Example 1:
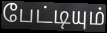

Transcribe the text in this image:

பேட்டியும்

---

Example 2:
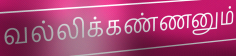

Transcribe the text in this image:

வல்லிக்கண்ணனும்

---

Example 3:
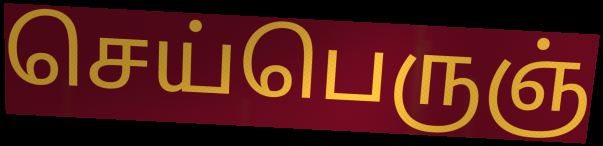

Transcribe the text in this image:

செய்பெருஞ்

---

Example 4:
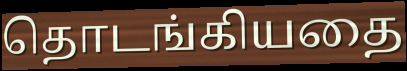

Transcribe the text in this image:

தொடங்கியதை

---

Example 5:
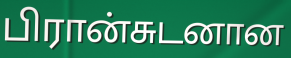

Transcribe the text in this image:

பிரான்சுடனான